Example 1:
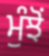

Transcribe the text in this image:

ਮੁੰਝੋਂ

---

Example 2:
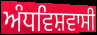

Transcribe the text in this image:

ਅੰਧਵਿਸ਼ਵਾਸੀ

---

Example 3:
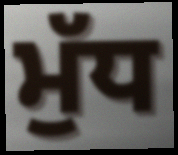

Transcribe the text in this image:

ਮੁੱਧ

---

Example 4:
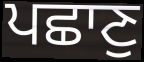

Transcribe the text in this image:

ਪਛਾਣੁ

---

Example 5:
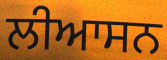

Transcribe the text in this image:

ਲੀਆਸਨ